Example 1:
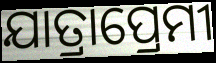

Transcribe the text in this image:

ଯାତ୍ରାପ୍ରେମୀ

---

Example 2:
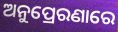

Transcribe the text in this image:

ଅନୁପ୍ରେରଣାରେ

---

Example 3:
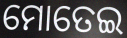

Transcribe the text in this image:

ମୋତେଇ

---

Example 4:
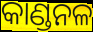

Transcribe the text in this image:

କାଣ୍ଡନଳ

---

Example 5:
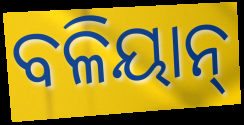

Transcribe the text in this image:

ବଳିୟାନ୍